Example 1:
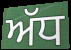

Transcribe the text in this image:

ਅੱਧ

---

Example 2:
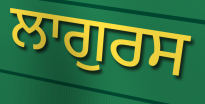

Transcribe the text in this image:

ਲਾਗੁਰਸ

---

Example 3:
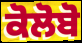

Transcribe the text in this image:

ਕੋਲੋਬੋ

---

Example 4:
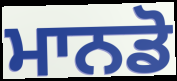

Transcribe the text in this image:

ਮਾਨਡੋ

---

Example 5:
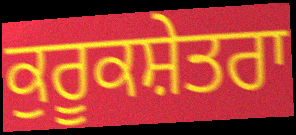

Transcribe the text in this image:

ਕੁਰੂਕਸ਼ੇਤਰਾ